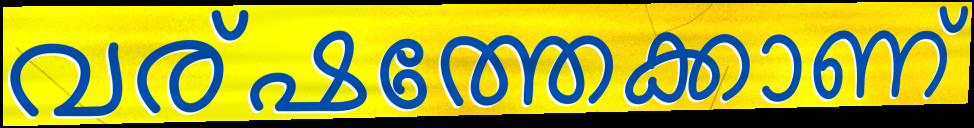
വര്ഷത്തേക്കാണ്